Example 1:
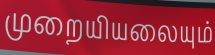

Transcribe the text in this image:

முறையியலையும்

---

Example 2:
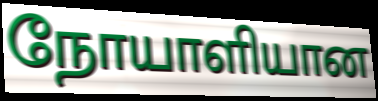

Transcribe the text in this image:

நோயாளியான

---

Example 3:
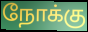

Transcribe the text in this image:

நோக்கு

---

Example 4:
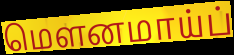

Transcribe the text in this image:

மௌனமாய்ப்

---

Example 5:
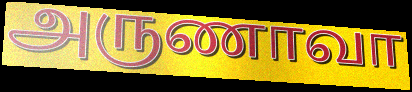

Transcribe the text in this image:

அருணாவா